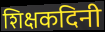
शिक्षकदिनी